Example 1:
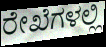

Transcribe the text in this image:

ರೇಖೆಗಳಲ್ಲಿ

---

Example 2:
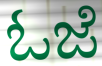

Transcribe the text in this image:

ಓಜೆ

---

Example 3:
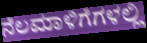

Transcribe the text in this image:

ನೆಲಮಾಳಿಗೆಗಳಲ್ಲಿ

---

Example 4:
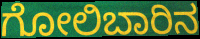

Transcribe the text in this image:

ಗೋಲಿಬಾರಿನ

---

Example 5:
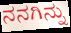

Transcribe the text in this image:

ನನಗಿನ್ನು